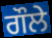
ਗੌਲੇ